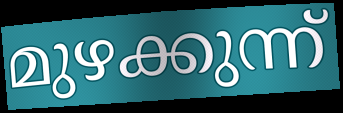
മുഴക്കുന്ന്